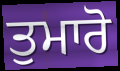
ਤੁਮਾਰੋ